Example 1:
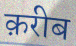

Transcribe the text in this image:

क़रीब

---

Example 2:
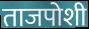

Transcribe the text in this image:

ताजपोशी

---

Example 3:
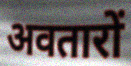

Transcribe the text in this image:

अवतारों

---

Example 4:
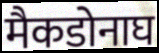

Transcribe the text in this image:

मैकडोनाघ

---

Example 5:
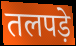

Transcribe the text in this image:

तलपड़े